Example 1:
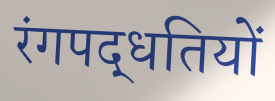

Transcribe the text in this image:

रंगपद्धतियों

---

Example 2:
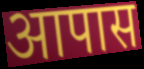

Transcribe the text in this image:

आपास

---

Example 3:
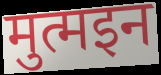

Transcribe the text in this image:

मुत्मइन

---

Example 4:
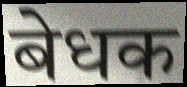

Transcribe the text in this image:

बेधक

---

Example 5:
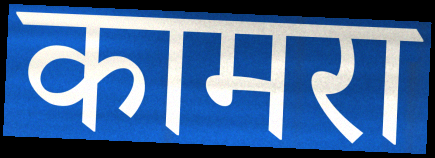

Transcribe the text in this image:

कामरा